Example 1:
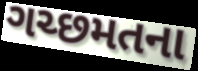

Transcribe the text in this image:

ગચ્છમતના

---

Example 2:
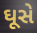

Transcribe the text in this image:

ઘૂસે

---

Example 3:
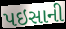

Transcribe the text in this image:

પઇસાની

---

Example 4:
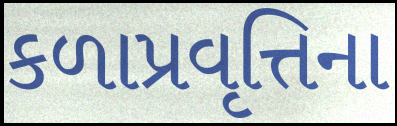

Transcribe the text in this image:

કળાપ્રવૃત્તિના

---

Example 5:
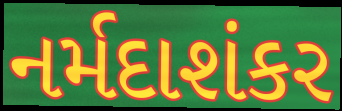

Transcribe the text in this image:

નર્મદાશંકર